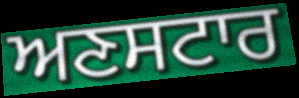
ਅਣਸਟਾਰ